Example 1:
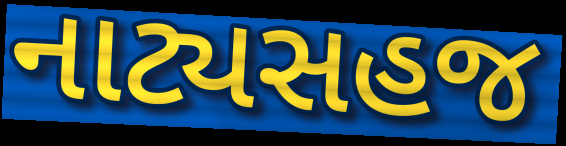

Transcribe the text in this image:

નાટ્યસહજ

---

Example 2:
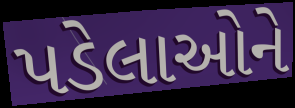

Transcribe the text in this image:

પડેલાઓને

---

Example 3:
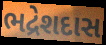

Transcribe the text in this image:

ભદ્રેશદાસ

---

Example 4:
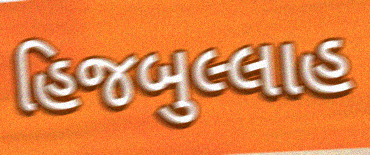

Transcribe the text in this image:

હિજબુલ્લાહ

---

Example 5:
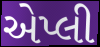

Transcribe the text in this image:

એપ્લી